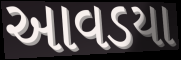
આવડયા